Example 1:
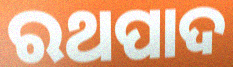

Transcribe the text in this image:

ରଥପାଦ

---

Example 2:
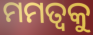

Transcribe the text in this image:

ମମତ୍ୱକୁ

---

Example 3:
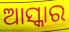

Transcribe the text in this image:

ଆସ୍କାର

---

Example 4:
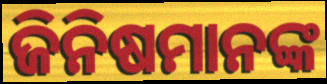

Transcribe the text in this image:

ଜିନିଷମାନଙ୍କ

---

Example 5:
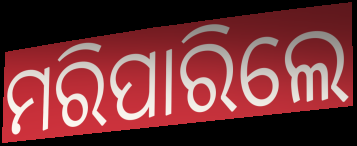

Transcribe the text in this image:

ମରିପାରିଲେ